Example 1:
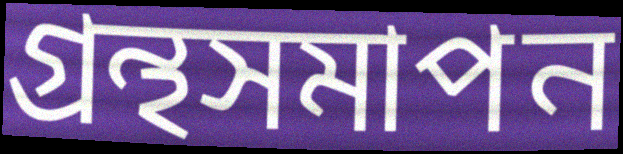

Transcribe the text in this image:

গ্রন্থসমাপন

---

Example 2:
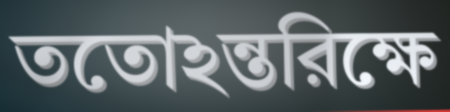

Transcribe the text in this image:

ততোঽন্তরিক্ষে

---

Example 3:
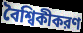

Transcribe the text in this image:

বৈশ্বিকীকরণ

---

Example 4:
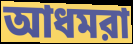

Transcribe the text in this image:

আধমরা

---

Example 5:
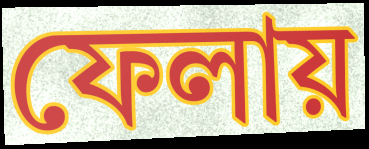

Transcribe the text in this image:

ফেলায়